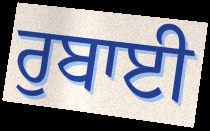
ਰੁਬਾਈ